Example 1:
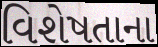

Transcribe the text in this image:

વિશેષતાના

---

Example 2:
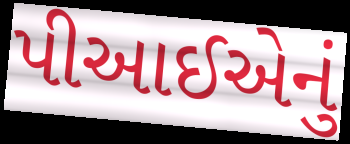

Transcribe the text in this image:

પીઆઈએનું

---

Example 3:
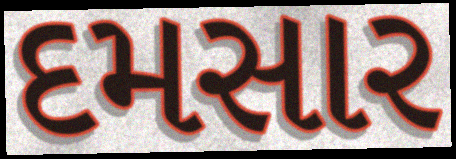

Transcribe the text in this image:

દમસાર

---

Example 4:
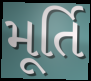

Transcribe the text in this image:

મૂર્તિ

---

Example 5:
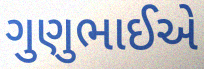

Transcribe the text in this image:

ગુણુભાઈએ